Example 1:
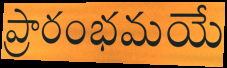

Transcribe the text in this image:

ప్రారంభమయే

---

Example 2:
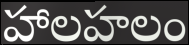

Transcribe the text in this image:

హాలహలం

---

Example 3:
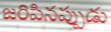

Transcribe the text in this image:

జరిపినప్పుడు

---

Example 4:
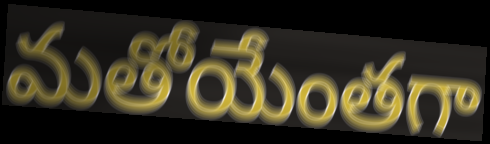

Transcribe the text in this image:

మతోయేంతగా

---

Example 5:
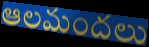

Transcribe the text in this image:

ఆలమందలు